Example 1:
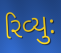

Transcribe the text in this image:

રિવ્યુઃ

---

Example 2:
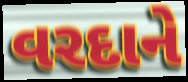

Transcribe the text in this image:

વરદાને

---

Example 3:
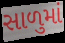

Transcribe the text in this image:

સાળુમાં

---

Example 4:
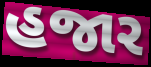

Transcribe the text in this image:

હજાર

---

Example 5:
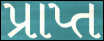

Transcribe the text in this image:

પ્રાપ્‍ત